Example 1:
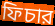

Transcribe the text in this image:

ফিচার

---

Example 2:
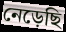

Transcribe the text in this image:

নেড়েছি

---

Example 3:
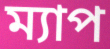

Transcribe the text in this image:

ম্যাপ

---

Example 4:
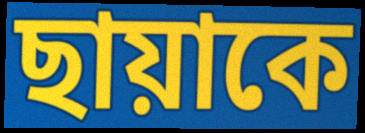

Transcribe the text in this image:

ছায়াকে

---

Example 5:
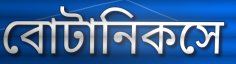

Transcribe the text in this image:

বোটানিকসে